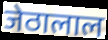
जेठालाल